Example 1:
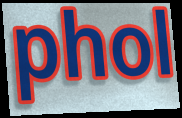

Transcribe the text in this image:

phol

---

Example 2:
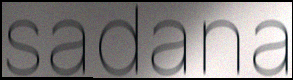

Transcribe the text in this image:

sadana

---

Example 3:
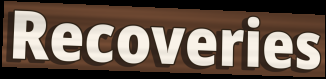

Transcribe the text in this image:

Recoveries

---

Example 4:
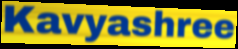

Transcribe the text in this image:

Kavyashree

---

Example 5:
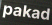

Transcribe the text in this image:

pakad